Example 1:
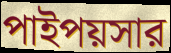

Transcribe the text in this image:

পাইপয়সার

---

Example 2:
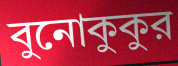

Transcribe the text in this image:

বুনোকুকুর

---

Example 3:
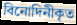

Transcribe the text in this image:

বিনোদিনীকৃত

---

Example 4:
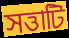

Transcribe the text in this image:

সত্তাটি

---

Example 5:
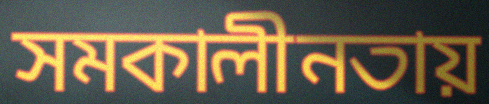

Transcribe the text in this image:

সমকালীনতায়